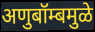
अणुबॉम्बमुळे